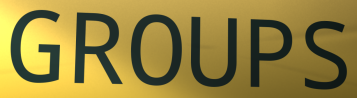
GROUPS